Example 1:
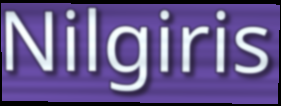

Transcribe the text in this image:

Nilgiris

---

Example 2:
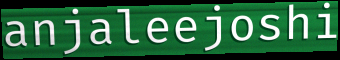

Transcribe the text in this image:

anjaleejoshi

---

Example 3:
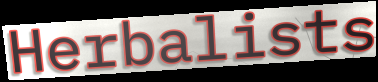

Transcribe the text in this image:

Herbalists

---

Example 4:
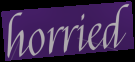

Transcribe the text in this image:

horried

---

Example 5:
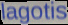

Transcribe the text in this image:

lagotis